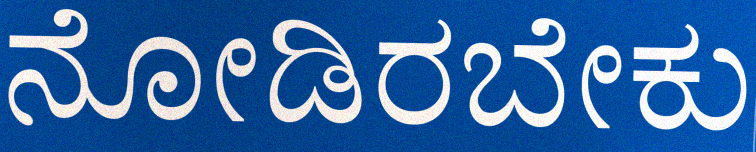
ನೋಡಿರಬೇಕು